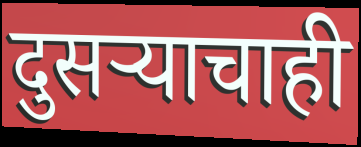
दुसऱ्याचाही